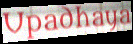
Upadhaya